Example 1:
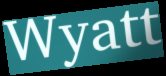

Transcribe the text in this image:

Wyatt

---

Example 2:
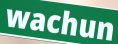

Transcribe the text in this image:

wachun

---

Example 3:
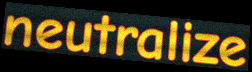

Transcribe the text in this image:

neutralize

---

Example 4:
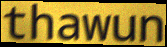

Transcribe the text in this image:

thawun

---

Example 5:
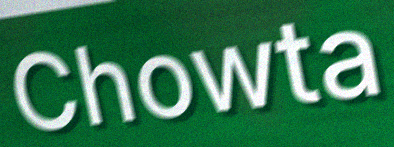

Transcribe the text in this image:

Chowta